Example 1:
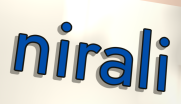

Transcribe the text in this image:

nirali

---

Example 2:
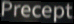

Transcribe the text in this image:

Precept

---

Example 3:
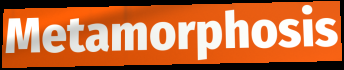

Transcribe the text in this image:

Metamorphosis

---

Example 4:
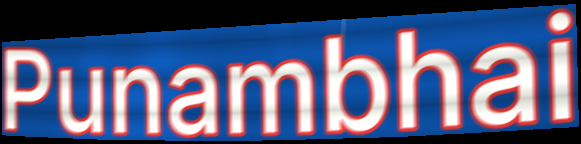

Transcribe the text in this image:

Punambhai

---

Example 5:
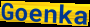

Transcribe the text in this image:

Goenka